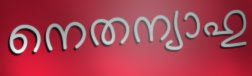
നെതന്യാഹു